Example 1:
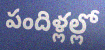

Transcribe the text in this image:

పందిళ్లల్లో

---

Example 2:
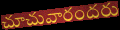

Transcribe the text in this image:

చూచువారందరు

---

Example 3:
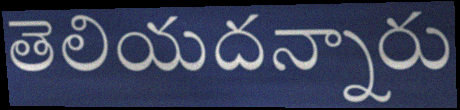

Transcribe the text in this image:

తెలియదన్నారు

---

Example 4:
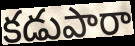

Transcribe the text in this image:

కడుపారా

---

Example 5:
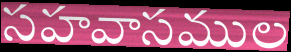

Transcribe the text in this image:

సహవాసముల